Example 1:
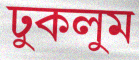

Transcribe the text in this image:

ঢুকলুম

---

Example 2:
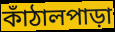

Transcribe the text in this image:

কাঁঠালপাড়া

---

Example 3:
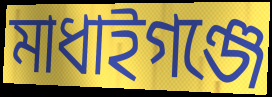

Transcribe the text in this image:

মাধাইগঞ্জে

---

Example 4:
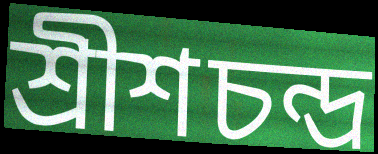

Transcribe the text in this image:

শ্রীশচন্দ্র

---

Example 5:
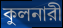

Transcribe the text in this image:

কুলনারী